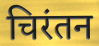
चिरंतन